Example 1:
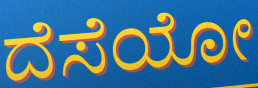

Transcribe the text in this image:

ದೆಸೆಯೋ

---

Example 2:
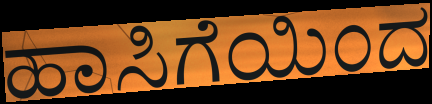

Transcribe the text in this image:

ಹಾಸಿಗೆಯಿಂದ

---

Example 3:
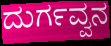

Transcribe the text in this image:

ದುರ್ಗವ್ವನ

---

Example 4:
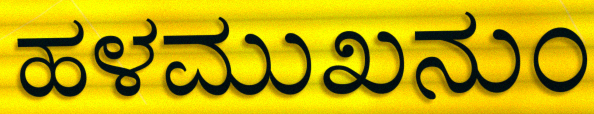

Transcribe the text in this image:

ಹಳಮುಖನುಂ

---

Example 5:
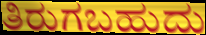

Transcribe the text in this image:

ತಿರುಗಬಹುದು